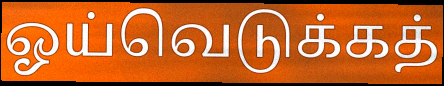
ஓய்வெடுக்கத்